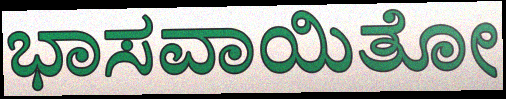
ಭಾಸವಾಯಿತೋ